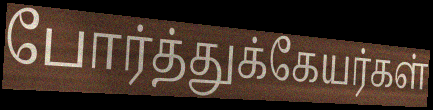
போர்த்துக்கேயர்கள்